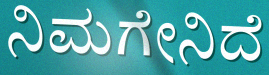
ನಿಮಗೇನಿದೆ